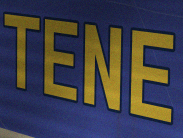
TENE